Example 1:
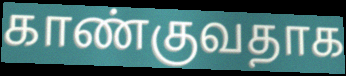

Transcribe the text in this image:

காண்குவதாக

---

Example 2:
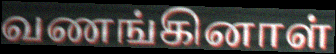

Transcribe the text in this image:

வணங்கினாள்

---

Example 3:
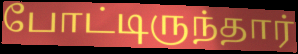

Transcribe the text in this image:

போட்டிருந்தார்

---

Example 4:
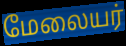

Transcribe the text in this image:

மேலையர்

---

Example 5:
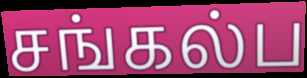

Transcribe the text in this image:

சங்கல்ப